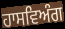
ਹਾਸਵਿਅੰਗ